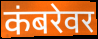
कंबरेवर